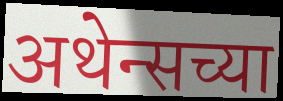
अथेन्सच्या